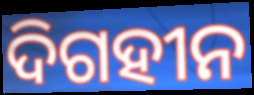
ଦିଗହୀନ